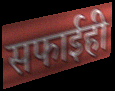
सफाईही